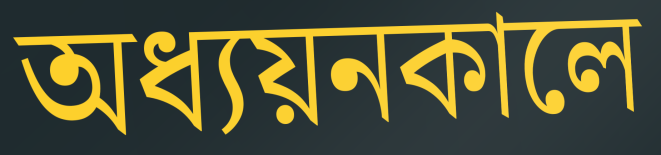
অধ্যয়নকালে